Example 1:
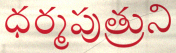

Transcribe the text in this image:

ధర్మపుత్రుని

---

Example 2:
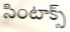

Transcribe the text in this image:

సింటాక్స్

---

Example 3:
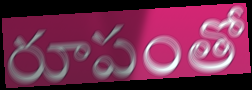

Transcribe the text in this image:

రూపంతో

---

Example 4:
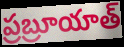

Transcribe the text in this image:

ప్రబ్రూయాత్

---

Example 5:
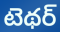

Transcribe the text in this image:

టెథర్